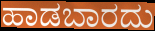
ಹಾಡಬಾರದು